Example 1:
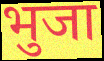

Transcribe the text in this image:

भुजा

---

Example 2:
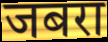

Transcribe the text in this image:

जबरा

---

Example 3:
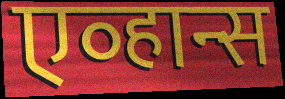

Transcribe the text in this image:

एव्हान्स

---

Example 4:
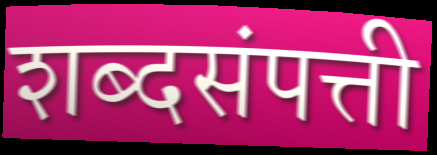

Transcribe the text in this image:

शब्दसंपत्ती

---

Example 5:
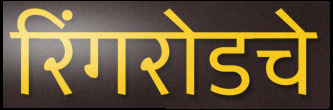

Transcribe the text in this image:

रिंगरोडचे